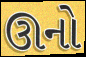
ઊનો